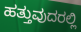
ಹತ್ತುವುದರಲ್ಲಿ